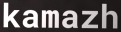
kamazh